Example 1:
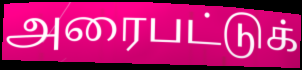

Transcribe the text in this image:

அரைபட்டுக்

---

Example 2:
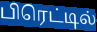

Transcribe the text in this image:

பிரெட்டில்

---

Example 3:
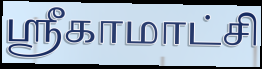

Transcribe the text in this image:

ஸ்ரீகாமாட்சி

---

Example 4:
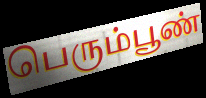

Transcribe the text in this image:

பெரும்பூண்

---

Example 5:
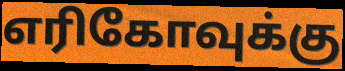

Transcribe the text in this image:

எரிகோவுக்கு